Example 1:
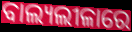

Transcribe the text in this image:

ବାଲ୍ୟଲୀଳାରେ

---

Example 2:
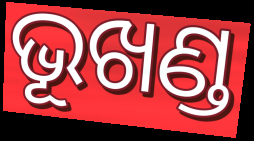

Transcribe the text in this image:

ଭୂଖଣ୍ଡ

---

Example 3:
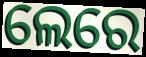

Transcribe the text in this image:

ଲେରେ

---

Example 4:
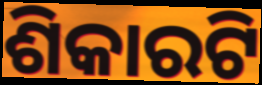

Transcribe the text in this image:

ଶିକାରଟି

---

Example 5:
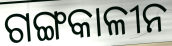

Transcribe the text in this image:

ଗଙ୍ଗକାଳୀନ